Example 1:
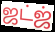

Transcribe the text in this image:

ஜட்ஜ்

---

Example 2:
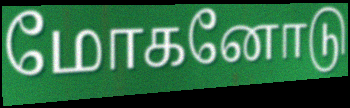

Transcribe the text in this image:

மோகனோடு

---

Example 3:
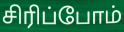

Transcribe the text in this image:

சிரிப்போம்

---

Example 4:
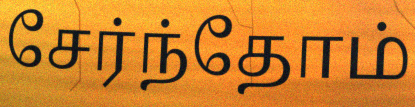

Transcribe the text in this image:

சேர்ந்தோம்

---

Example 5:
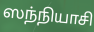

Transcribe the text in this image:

ஸந்நியாசி